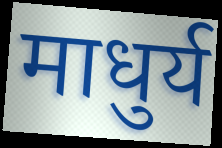
माधुर्य